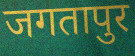
जगतापुर